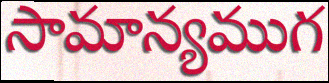
సామాన్యముగ